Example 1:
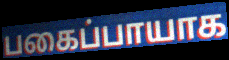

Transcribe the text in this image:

பகைப்பாயாக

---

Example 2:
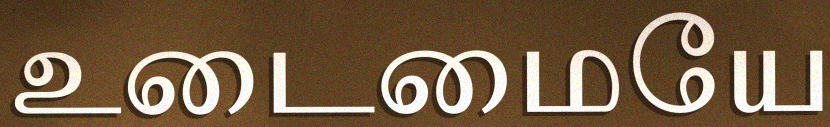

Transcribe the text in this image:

உடைமையே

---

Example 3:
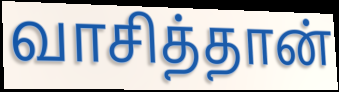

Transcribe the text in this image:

வாசித்தான்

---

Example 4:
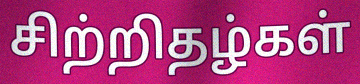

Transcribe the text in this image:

சிற்றிதழ்கள்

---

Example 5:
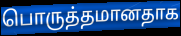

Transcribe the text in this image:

பொருத்தமானதாக